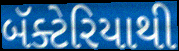
બૅક્ટેરિયાથી